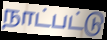
நாட்பட்டு